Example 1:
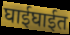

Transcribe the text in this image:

घाईघाईत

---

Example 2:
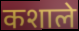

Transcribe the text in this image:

कशाले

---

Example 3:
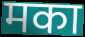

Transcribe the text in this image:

मका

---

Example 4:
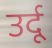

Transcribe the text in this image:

उर्दू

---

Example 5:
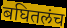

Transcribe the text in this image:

बघितलंच